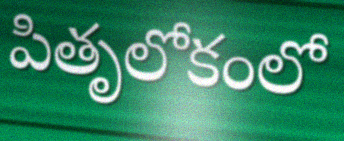
పితృలోకంలో